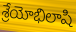
శ్రేయోభిలాషి